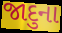
જાદુના